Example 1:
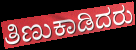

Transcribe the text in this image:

ತಿಣುಕಾಡಿದರು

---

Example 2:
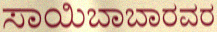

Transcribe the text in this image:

ಸಾಯಿಬಾಬಾರವರ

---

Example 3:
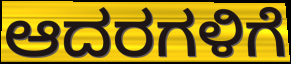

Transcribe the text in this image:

ಆದರಗಳಿಗೆ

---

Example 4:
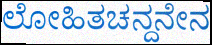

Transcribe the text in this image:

ಲೋಹಿತಚನ್ದನೇನ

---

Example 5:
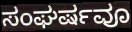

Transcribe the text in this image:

ಸಂಘರ್ಷವೂ